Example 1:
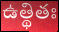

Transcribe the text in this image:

ఉత్థితః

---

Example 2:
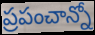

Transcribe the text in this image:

ప్రపంచాన్నో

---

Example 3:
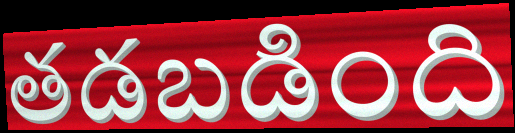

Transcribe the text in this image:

తడబడింది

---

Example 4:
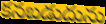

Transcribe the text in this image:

కనబడుదును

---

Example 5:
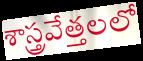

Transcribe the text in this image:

శాస్త్రవేత్తలలో